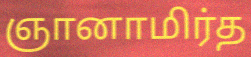
ஞானாமிர்த